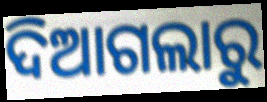
ଦିଆଗଲାରୁ